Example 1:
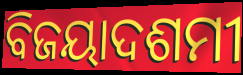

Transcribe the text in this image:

ବିଜୟାଦଶମୀ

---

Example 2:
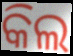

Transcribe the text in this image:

କିଲ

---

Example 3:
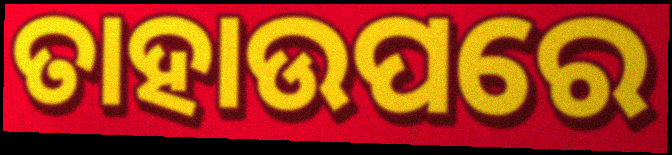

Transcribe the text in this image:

ତାହାଉପରେ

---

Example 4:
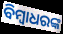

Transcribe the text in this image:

ବିମ୍ବାଧରଙ୍କ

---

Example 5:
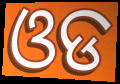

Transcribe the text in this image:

ଓଡ